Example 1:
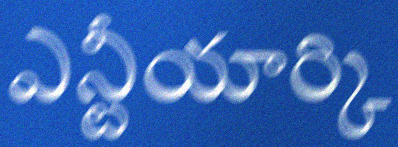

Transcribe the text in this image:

ఎన్టీయార్కి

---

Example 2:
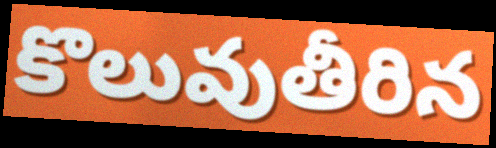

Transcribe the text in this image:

కొలువుతీరిన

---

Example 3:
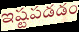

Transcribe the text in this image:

ఇష్టపడడం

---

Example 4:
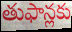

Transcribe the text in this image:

తుఫాన్లకు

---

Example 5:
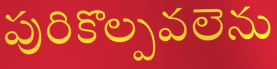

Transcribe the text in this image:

పురికొల్పవలెను